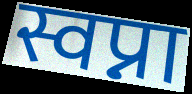
स्वप्ना